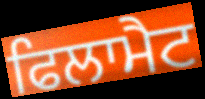
ਫਿਲਾਮੈਟ